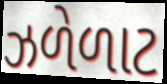
ઝળેળાટ